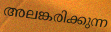
അലങ്കരിക്കുന്ന